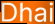
Dhai